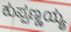
ಕುಪ್ಪಣ್ಣಯ್ಯ